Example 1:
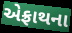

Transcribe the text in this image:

એફ્રાથના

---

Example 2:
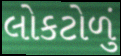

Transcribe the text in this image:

લોકટોળું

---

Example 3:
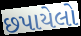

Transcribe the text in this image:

છપાયેલો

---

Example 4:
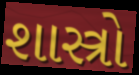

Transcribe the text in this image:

શાસ્ત્રો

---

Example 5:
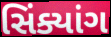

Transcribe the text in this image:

સિંક્યાંગ